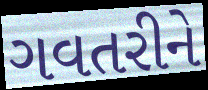
ગવતરીને